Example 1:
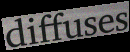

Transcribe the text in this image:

diffuses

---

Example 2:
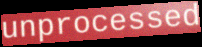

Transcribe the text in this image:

unprocessed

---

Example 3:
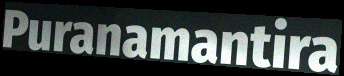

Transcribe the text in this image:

Puranamantira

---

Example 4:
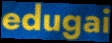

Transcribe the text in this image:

edugai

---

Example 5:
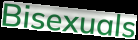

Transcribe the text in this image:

Bisexuals